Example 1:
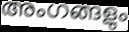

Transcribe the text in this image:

അംഗങ്ങളും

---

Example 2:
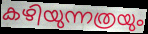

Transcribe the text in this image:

കഴിയുന്നത്രയും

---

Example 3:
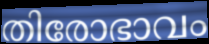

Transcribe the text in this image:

തിരോഭാവം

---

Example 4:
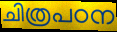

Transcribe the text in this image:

ചിത്രപഠന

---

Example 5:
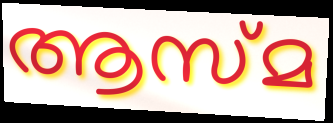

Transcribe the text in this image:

ആസ്മ